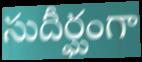
సుదీర్ఘంగా